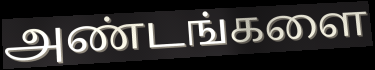
அண்டங்களை